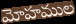
మోహముల